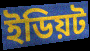
ইডিয়ট